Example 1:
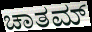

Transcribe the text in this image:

ಚಾತಮ್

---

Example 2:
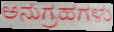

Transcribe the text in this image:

ಅನುಗ್ರಹಗಳು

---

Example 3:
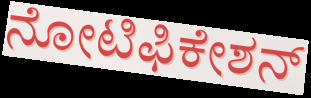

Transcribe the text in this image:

ನೋಟಿಫಿಕೇಶನ್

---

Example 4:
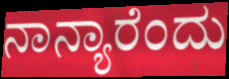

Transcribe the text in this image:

ನಾನ್ಯಾರೆಂದು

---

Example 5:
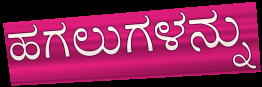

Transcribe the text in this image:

ಹಗಲುಗಳನ್ನು